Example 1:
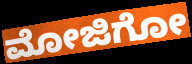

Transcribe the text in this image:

ಮೋಜಿಗೋ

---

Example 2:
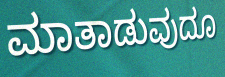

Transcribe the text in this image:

ಮಾತಾಡುವುದೂ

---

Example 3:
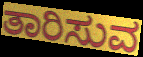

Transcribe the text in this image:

ತಾರಿಸುವ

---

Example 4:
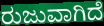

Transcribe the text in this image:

ರುಜುವಾಗಿದೆ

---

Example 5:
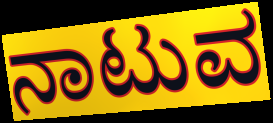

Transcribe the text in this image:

ನಾಟುವ